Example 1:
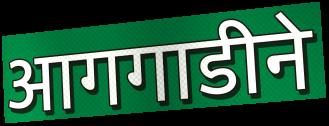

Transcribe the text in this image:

आगगाडीने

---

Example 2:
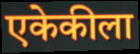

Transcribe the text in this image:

एकेकीला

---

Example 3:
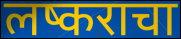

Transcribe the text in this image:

लष्कराचा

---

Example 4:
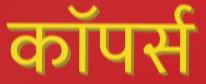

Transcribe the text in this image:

कॉपर्स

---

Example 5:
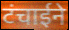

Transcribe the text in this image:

टंचाईने